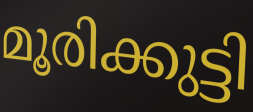
മൂരിക്കുട്ടി